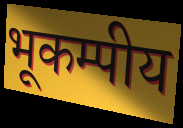
भूकम्पीय